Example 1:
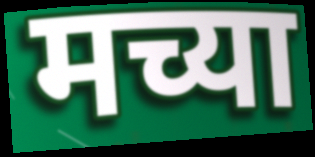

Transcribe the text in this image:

मच्या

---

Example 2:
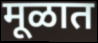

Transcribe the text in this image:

मूळात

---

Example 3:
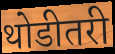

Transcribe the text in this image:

थोडीतरी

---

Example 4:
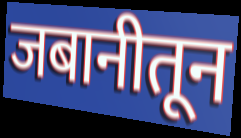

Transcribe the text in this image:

जबानीतून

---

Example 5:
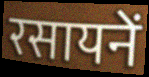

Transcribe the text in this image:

रसायनें